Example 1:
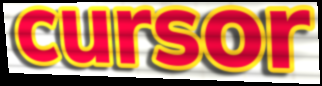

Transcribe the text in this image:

cursor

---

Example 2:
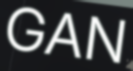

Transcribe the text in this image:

GAN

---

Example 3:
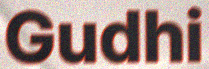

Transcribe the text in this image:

Gudhi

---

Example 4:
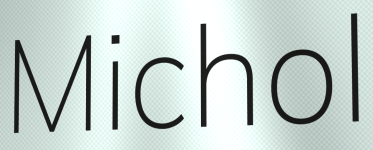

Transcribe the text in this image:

Michol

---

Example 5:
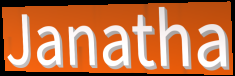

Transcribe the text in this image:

Janatha